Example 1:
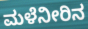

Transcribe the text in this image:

ಮಳೆನೀರಿನ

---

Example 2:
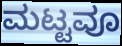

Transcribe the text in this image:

ಮಟ್ಟವೂ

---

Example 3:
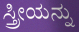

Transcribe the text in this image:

ಸ್ತ್ರೀಯನ್ನು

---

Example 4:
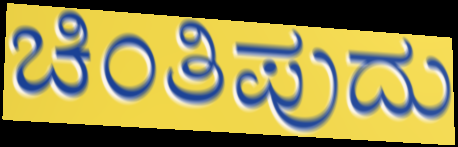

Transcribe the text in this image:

ಚಿಂತಿಪುದು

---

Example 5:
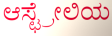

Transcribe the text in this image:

ಆಸ್ಟ್ರೇಲಿಯ